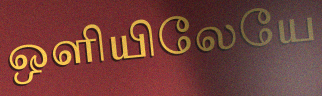
ஒளியிலேயே